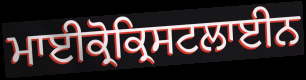
ਮਾਈਕ੍ਰੋਕ੍ਰਿਸਟਲਾਈਨ